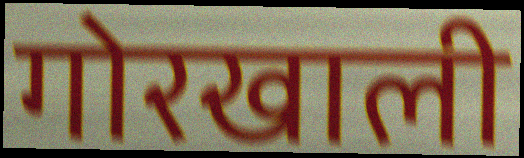
गोरखाली